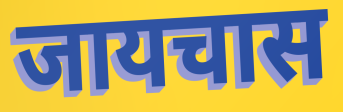
जायचास